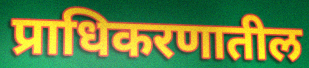
प्राधिकरणातील